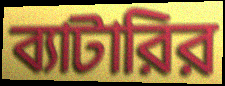
ব্যাটারির